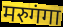
मरुगंगा